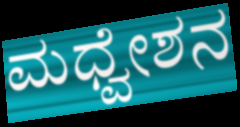
ಮಧ್ವೇಶನ